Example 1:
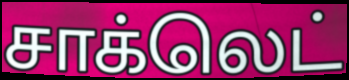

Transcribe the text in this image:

சாக்லெட்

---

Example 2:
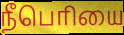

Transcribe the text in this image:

நீபெரியை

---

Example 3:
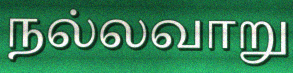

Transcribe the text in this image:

நல்லவாறு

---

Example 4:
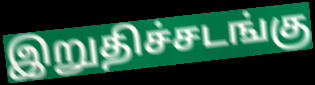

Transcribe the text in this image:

இறுதிச்சடங்கு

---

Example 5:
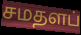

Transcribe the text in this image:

சமதளப்